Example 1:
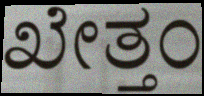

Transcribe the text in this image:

ಖೇತ್ತಂ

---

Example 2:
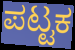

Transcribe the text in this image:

ಪಟ್ಟಕ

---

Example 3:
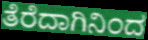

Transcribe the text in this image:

ತೆರೆದಾಗಿನಿಂದ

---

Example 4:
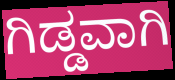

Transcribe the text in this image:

ಗಿಡ್ಡವಾಗಿ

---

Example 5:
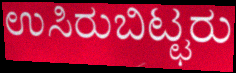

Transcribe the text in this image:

ಉಸಿರುಬಿಟ್ಟರು